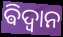
ଵିଦ୍ଵାନ